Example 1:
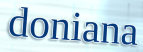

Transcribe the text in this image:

doniana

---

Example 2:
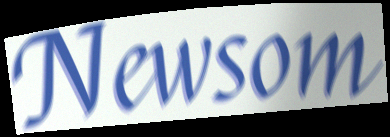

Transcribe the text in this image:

Newsom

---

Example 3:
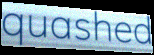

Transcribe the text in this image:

quashed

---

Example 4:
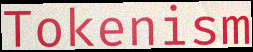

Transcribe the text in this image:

Tokenism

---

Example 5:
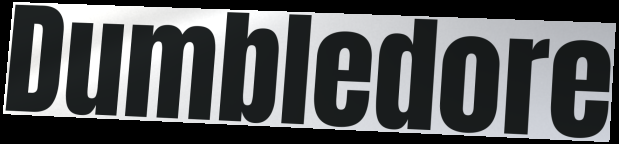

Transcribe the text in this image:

Dumbledore